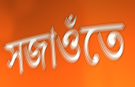
সজাওঁতে